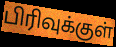
பிரிவுக்குள்